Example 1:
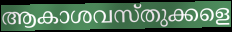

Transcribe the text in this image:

ആകാശവസ്തുക്കളെ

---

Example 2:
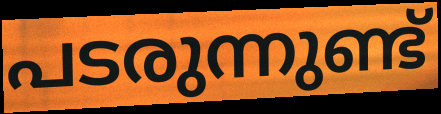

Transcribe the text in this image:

പടരുന്നുണ്ട്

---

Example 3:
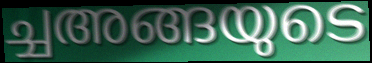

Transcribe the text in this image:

ച്ചഅങ്ങയുടെ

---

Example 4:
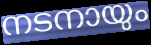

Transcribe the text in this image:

നടനായും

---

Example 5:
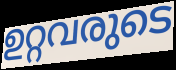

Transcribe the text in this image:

ഉറ്റവരുടെ